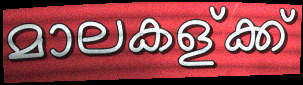
മാലകള്ക്ക്